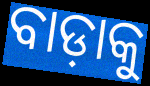
ବାଡ଼ାକୁ